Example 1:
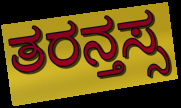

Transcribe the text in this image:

ತರನ್ತಸ್ಸ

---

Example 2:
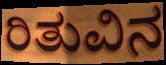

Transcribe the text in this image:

ರಿತುವಿನ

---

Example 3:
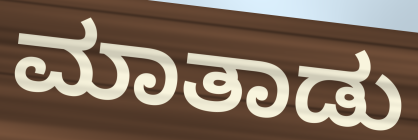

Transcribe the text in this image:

ಮಾತಾಡು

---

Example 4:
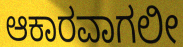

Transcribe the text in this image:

ಆಕಾರವಾಗಲೀ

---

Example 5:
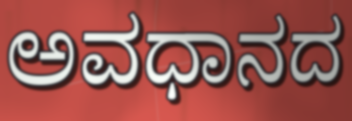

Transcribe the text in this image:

ಅವಧಾನದ